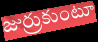
జుర్రుకుంటూ